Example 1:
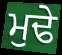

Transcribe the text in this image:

ਮੁਢੇ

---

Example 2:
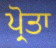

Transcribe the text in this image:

ਪ੍ਰੋਤਾ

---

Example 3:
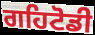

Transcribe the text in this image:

ਗਹਿਟੋਡੀ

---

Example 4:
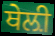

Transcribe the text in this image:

ਥੇਲ਼ੀ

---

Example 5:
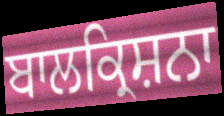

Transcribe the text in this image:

ਬਾਲਕ੍ਰਿਸ਼ਨਾ